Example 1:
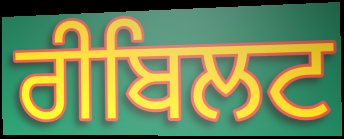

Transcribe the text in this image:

ਰੀਬਿਲਟ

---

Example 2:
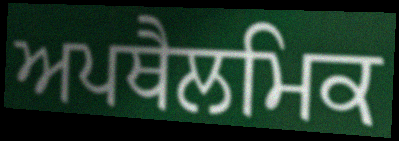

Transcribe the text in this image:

ਅਪਥੈਲਮਿਕ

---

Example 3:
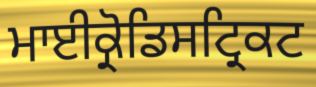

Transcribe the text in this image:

ਮਾਈਕ੍ਰੋਡਿਸਟ੍ਰਿਕਟ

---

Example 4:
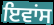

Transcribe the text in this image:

ਇਵਾਂਸ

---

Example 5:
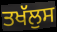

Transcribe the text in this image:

ਤਖੱਲੁਸ